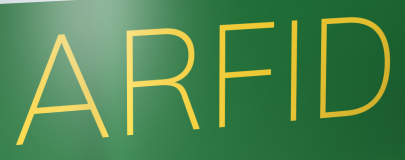
ARFID